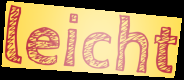
leicht